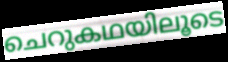
ചെറുകഥയിലൂടെ